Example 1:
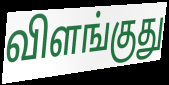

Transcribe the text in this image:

விளங்குது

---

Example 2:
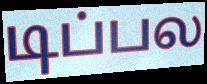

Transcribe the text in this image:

டிப்பல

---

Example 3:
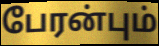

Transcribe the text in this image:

பேரன்பும்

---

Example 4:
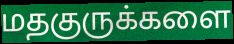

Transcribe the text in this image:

மதகுருக்களை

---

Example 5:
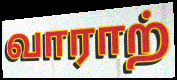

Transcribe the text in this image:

வாராற்